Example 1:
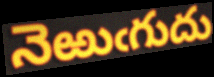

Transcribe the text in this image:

నెఱుఁగుదు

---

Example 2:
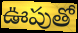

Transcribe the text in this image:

ఊపుతో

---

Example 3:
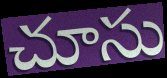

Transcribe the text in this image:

చూసు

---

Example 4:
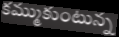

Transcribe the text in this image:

కమ్ముకుంటున్న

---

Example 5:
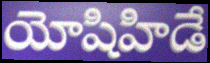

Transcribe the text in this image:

యోషిహిడే